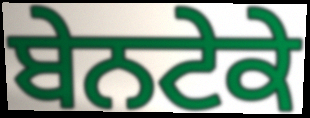
ਬੇਨਟੇਕੇ